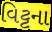
વિટ્ટના